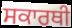
ਸਕਾਰਥੀ